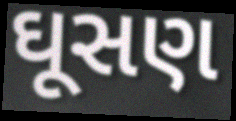
ઘૂસણ